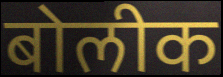
बोलीक